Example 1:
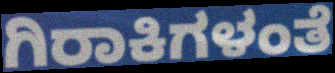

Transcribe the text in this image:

ಗಿರಾಕಿಗಳಂತೆ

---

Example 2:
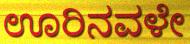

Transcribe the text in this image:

ಊರಿನವಳೇ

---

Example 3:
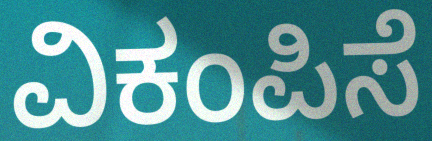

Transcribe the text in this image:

ವಿಕಂಪಿಸೆ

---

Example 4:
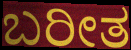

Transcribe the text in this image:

ಬರೀತ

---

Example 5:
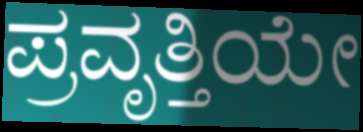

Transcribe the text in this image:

ಪ್ರವೃತ್ತಿಯೇ